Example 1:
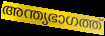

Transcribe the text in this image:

അന്ത്യഭാഗത്ത്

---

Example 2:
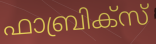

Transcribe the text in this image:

ഫാബ്രിക്സ്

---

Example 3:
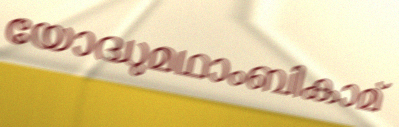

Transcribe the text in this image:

യോദ്ധുമഥാംബികാമ്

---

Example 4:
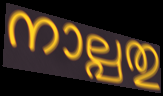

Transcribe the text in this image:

നാല്പതു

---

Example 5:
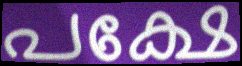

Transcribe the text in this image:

പക്ഷേ